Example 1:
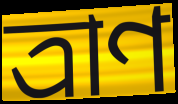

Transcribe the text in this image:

ত্ৰাণ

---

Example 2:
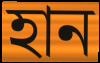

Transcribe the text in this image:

হান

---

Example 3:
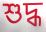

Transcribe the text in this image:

শুদ্ধ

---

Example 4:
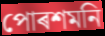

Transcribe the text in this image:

পোৰশমনি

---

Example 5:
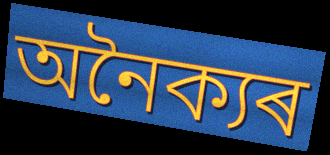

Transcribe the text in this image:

অনৈক্যৰ